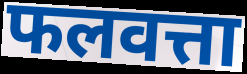
फलवत्ता